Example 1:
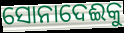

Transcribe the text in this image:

ସୋନାଦେଈକୁ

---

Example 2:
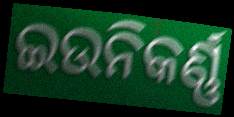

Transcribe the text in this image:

ଇଉନିକର୍ଣ୍ଣ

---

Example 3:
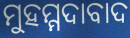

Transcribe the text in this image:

ମୁହମ୍ମଦାବାଦ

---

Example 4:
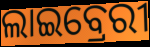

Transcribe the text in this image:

ଲାଇବ୍ରେରୀ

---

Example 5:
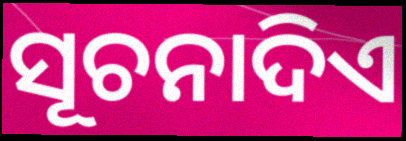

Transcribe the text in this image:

ସୂଚନାଦିଏ